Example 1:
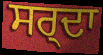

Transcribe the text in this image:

ਸਰ੍ਦਾ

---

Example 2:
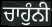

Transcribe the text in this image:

ਚਾਹੁੰਨੀ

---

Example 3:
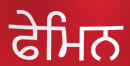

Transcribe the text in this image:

ਫੇਮਿਨ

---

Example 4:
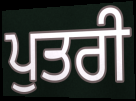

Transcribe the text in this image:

ਪੁਤਰੀ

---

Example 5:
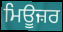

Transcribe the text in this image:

ਮਿਊਜ਼ਰ